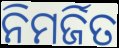
ନିମର୍ଜିତ